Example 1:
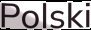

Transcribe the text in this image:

Polski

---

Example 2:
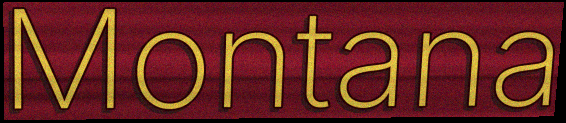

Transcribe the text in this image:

Montana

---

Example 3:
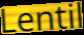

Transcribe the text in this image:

Lentil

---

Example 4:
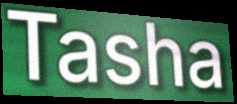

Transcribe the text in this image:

Tasha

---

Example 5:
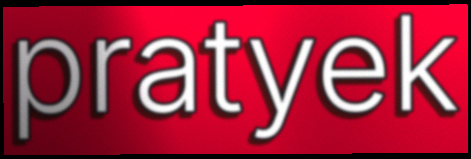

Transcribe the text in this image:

pratyek